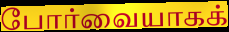
போர்வையாகக்